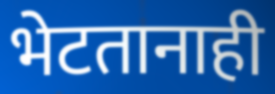
भेटतानाही